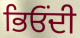
ਭਿਓਂਦੀ